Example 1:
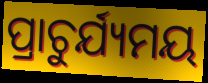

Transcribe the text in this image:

ପ୍ରାଚୁର୍ଯ୍ୟମୟ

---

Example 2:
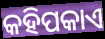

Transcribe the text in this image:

କହିପକାଏ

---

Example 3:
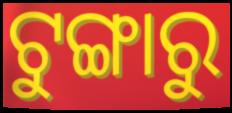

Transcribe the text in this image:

ଟୁଙ୍ଗାରୁ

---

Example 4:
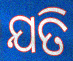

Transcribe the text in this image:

ଯତି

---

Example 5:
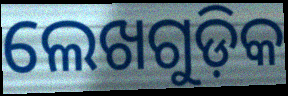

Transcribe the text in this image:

ଲେଖଗୁଡ଼ିକ